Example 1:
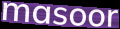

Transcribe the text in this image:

masoor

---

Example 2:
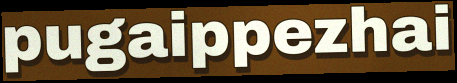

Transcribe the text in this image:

pugaippezhai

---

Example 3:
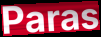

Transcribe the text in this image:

Paras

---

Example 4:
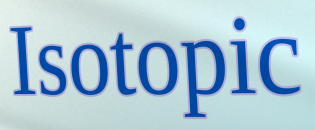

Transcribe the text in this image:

Isotopic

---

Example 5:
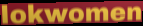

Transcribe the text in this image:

lokwomen